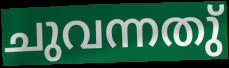
ചുവന്നതു്